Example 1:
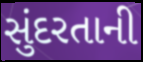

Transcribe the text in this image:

સુંદરતાની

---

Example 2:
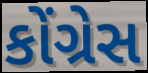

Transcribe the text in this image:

કોંગ્રેસ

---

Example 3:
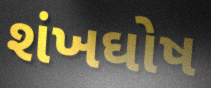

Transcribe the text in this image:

શંખઘોષ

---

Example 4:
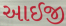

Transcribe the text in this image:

આઈજી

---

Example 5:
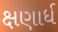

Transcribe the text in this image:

ક્ષણાર્ધ